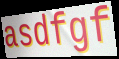
asdfgf